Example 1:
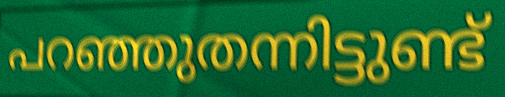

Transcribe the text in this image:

പറഞ്ഞുതന്നിട്ടുണ്ട്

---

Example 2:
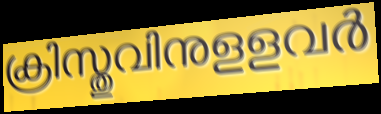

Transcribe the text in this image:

ക്രിസ്തുവിനുളളവർ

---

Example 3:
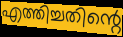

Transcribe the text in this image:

എത്തിച്ചതിന്റെ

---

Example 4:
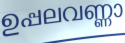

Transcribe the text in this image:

ഉപ്പലവണ്ണാ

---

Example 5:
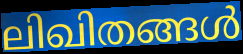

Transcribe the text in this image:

ലിഖിതങ്ങൾ